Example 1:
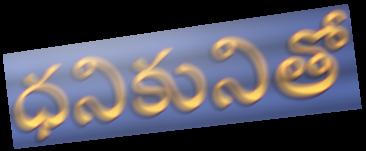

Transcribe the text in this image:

ధనికునితో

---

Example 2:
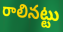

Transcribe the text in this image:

రాలినట్టు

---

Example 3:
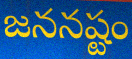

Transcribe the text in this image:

జననష్టం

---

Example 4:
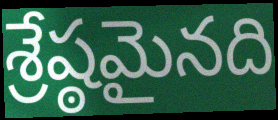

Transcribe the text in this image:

శ్రేష్ఠమైనది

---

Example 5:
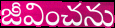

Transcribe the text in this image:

జీవించను